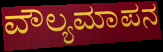
ವೌಲ್ಯಮಾಪನ